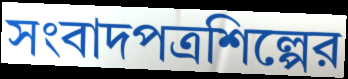
সংবাদপত্রশিল্পের